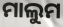
ମାଲୁମ